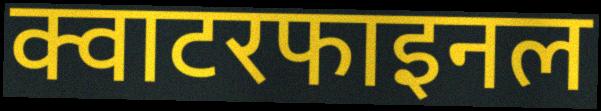
क्वाटरफाइनल